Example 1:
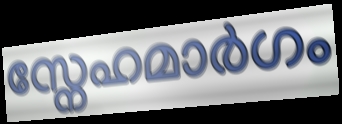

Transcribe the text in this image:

സ്നേഹമാർഗം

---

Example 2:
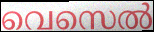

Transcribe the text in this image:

വെസെൽ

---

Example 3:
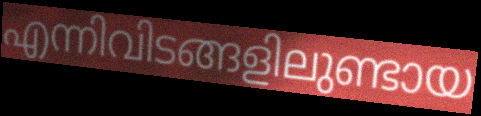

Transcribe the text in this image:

എന്നിവിടങ്ങളിലുണ്ടായ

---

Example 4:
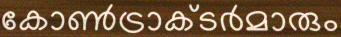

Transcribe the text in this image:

കോൺട്രാക്ടർമാരും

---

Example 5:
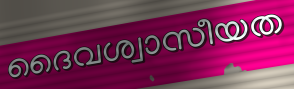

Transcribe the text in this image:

ദൈവശ്വാസീയത